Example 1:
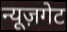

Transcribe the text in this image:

न्यूज़गेट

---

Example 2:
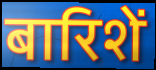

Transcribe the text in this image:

बारिशें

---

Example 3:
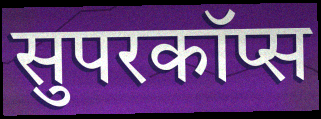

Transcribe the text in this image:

सुपरकॉप्स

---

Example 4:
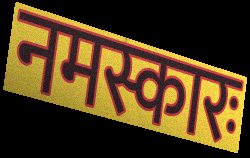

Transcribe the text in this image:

नमस्कारः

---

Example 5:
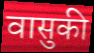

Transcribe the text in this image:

वासुकी